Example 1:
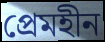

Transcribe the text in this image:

প্রেমহীন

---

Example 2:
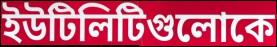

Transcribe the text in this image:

ইউটিলিটিগুলোকে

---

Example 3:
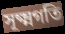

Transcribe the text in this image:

সূক্ষ্মগতি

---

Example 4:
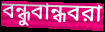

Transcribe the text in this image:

বন্ধুবান্ধবরা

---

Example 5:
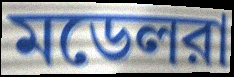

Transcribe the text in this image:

মডেলরা